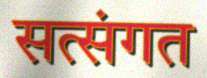
सत्संगत